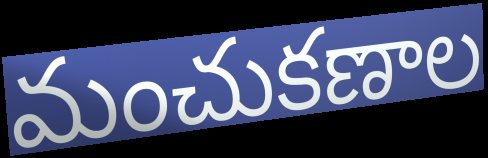
మంచుకణాల